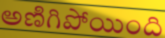
అణిగిపోయింది